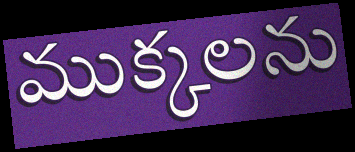
ముక్కలను